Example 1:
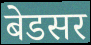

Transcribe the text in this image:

बेडसर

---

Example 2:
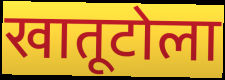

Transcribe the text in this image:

खातूटोला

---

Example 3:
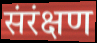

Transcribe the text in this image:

संरंक्षण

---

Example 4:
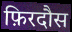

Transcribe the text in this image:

फ़िरदौस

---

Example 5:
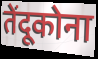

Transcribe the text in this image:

तेंदूकोना